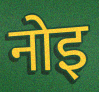
नोइ